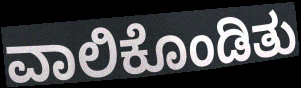
ವಾಲಿಕೊಂಡಿತು